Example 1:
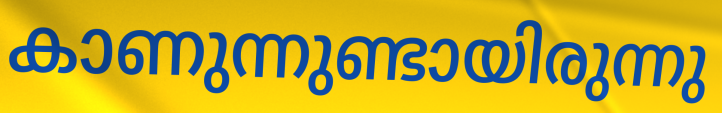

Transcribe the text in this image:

കാണുന്നുണ്ടായിരുന്നു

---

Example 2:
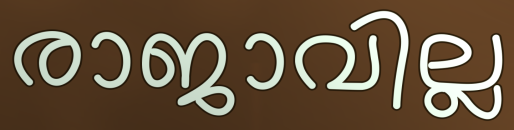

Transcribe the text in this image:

രാജാവില്ല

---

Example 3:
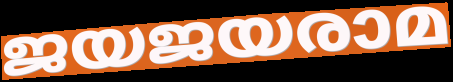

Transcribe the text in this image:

ജയജയരാമ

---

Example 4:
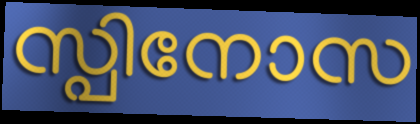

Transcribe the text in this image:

സ്പിനോസ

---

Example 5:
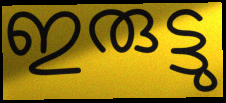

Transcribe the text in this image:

ഇരുട്ടു